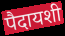
पैदायशी